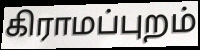
கிராமப்புறம்